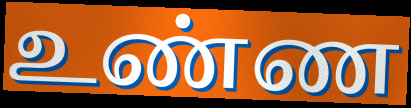
உண்ண